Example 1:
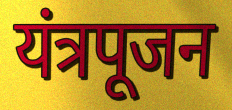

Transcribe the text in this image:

यंत्रपूजन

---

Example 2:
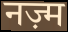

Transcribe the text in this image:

नज़्म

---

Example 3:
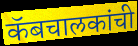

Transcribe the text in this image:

कॅबचालकांची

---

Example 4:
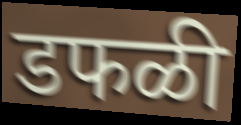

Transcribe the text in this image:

डफळी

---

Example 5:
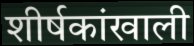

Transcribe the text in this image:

शीर्षकांखाली